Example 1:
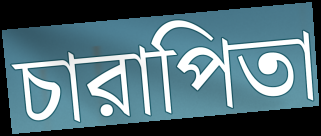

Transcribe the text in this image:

চারাপিতা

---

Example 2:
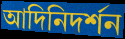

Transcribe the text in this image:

আদিনিদর্শন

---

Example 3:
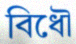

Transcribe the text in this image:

বিধৌ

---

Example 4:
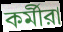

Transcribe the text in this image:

কর্মীরা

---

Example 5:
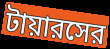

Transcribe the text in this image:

টায়ারসের